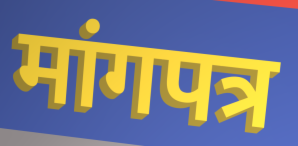
मांगपत्र